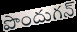
పొందుగన్